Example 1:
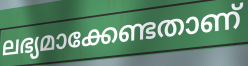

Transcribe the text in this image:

ലഭ്യമാക്കേണ്ടതാണ്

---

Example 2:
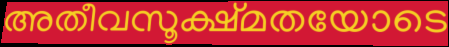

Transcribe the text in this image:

അതീവസൂക്ഷ്മതയോടെ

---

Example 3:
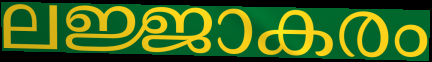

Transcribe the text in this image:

ലജ്ജാകരം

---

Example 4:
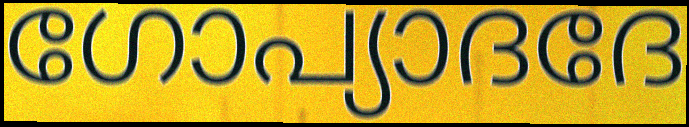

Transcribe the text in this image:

ഗോപ്യാദദേ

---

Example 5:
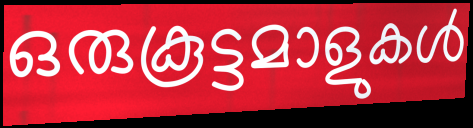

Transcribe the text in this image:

ഒരുകൂട്ടമാളുകൾ